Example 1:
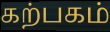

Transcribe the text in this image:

கற்பகம்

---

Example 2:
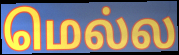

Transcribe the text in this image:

மெல்ல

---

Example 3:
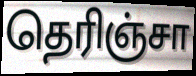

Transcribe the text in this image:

தெரிஞ்சா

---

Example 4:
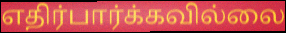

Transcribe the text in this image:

எதிர்பார்க்கவில்லை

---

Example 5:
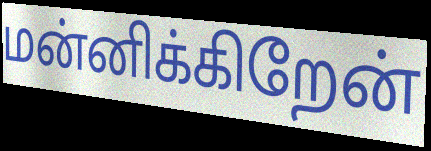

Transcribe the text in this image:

மன்னிக்கிறேன்